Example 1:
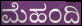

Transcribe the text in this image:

ಮೆಹಂದಿ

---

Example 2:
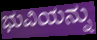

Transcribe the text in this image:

ಭುವಿಯನ್ನು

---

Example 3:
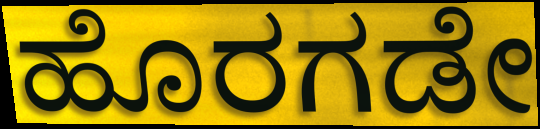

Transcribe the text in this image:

ಹೊರಗಡೇ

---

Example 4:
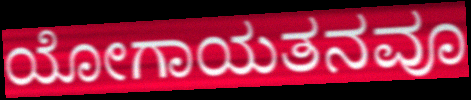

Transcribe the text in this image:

ಯೋಗಾಯತನವೂ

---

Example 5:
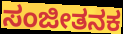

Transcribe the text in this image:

ಸಂಜೀತನಕ